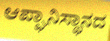
ಆಪ್ಘಾನಿಸ್ಥಾನದ